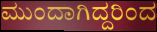
ಮುಂದಾಗಿದ್ದರಿಂದ